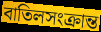
বাতিলসংক্রান্ত